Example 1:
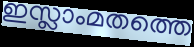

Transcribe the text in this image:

ഇസ്ലാംമതത്തെ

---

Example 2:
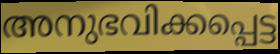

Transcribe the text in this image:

അനുഭവിക്കപ്പെട്ട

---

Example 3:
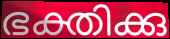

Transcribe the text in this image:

ഭക്തിക്കു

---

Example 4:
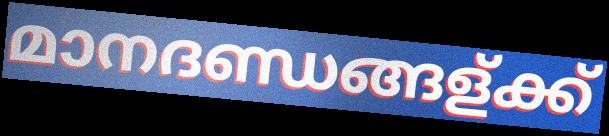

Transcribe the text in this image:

മാനദണ്ഡങ്ങള്ക്ക്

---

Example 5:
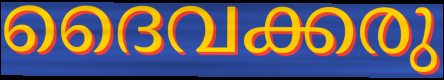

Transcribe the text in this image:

ദൈവക്കരു